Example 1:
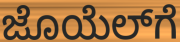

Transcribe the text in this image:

ಜೊಯೆಲ್‌ಗೆ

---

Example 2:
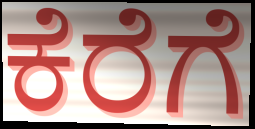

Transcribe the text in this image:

ಕೆರೆಗೆ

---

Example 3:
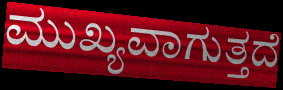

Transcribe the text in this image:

ಮುಖ್ಯವಾಗುತ್ತದೆ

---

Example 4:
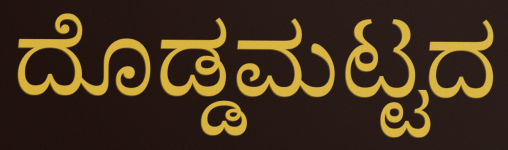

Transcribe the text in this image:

ದೊಡ್ಡಮಟ್ಟದ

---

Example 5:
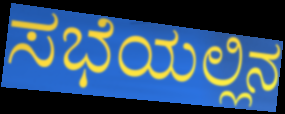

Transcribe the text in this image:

ಸಭೆಯಲ್ಲಿನ